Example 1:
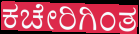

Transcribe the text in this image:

ಕಚೇರಿಗಿಂತ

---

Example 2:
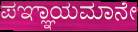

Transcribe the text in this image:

ಪಞ್ಞಾಯಮಾನೇ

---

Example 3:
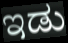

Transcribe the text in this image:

ಇಡು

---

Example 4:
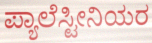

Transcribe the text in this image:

ಪ್ಯಾಲೆಸ್ಟೀನಿಯರ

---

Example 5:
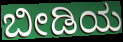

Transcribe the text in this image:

ಬೀಡಿಯ